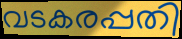
വടകരപ്പതി